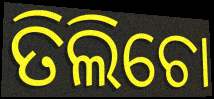
ତିଲିଚୋ